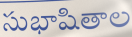
సుభాషితాల